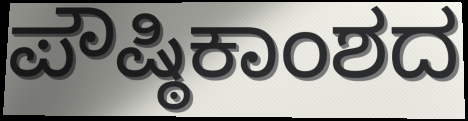
ಪೌಷ್ಠಿಕಾಂಶದ